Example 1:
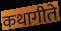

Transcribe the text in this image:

कथागीते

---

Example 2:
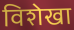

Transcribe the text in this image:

विशेखा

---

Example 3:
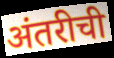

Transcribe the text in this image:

अंतरीची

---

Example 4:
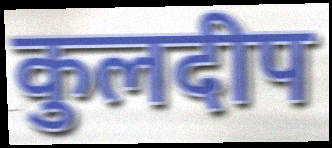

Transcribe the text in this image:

कुलदीप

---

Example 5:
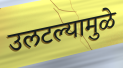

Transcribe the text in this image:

उलटल्यामुळे